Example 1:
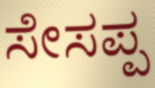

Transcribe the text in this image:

ಸೇಸಪ್ಪ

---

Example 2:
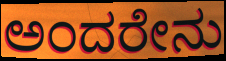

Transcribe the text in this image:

ಅಂದರೇನು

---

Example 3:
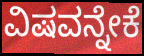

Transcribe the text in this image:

ವಿಷವನ್ನೇಕೆ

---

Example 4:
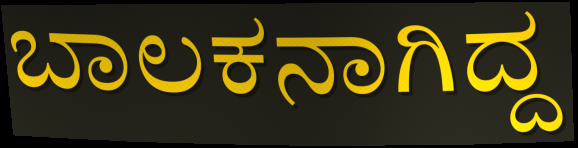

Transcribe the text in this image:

ಬಾಲಕನಾಗಿದ್ದ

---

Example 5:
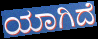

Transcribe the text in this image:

ಯಾಗಿದೆ